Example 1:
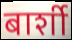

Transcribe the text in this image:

बार्शी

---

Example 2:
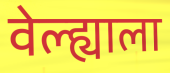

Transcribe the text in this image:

वेल्ह्याला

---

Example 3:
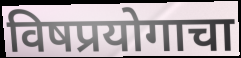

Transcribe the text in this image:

विषप्रयोगाचा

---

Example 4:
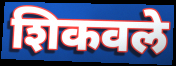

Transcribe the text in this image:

शिकवले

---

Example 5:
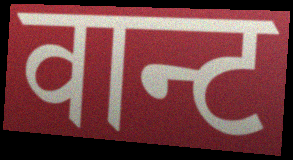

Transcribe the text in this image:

वान्ट